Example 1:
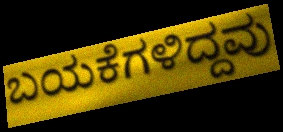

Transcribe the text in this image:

ಬಯಕೆಗಳಿದ್ದವು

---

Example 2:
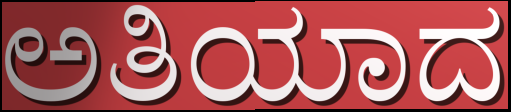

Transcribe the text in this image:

ಅತಿಯಾದ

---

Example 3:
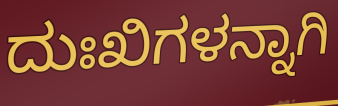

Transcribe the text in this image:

ದುಃಖಿಗಳನ್ನಾಗಿ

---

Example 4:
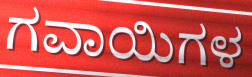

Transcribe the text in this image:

ಗವಾಯಿಗಳ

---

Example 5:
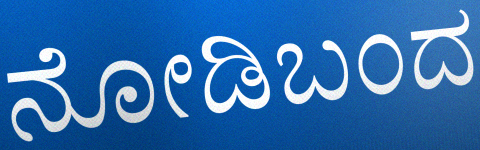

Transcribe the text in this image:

ನೋಡಿಬಂದ